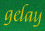
gelay